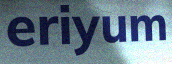
eriyum